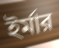
ইর্মার